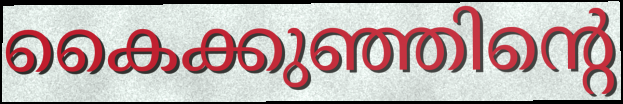
കൈക്കുഞ്ഞിന്റെ